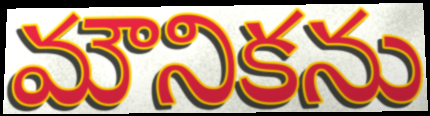
మౌనికను